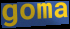
goma